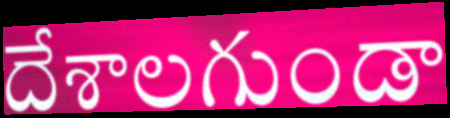
దేశాలగుండా